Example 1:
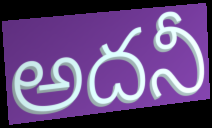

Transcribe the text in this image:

అదనీ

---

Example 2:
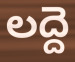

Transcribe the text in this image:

లద్దె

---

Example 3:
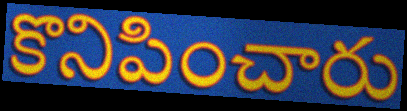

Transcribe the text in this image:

కొనిపించారు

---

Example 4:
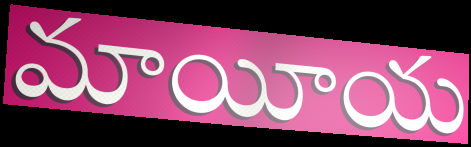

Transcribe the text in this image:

మాయీయ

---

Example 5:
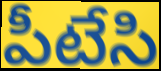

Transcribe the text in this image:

పీటేసి